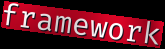
framework